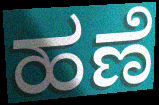
ಹಣೆ